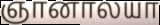
ஞானாலயா